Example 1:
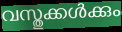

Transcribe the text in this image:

വസ്തുക്കൾക്കും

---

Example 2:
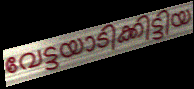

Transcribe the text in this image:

വേട്ടയാടിക്കിട്ടിയ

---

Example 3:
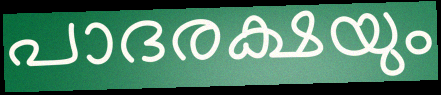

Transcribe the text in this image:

പാദരക്ഷയും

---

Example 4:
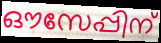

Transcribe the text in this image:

ഔസേപ്പിന്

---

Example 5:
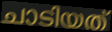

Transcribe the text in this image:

ചാടിയത്